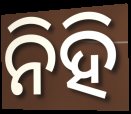
ନିହି